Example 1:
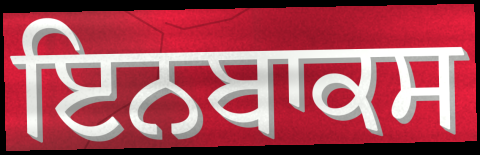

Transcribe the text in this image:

ਇਨਬਾਕਸ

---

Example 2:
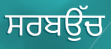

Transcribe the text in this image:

ਸਰਬਉੱਚ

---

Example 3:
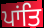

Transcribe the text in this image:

ਪਾਂਤਿ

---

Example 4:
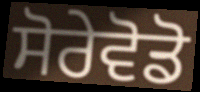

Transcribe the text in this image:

ਸੋਰੇਵੋਡੋ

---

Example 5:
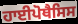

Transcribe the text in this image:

ਹਾਈਪੋਥੈਸਿਸ